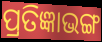
ପ୍ରତିଜ୍ଞାଭଙ୍ଗ